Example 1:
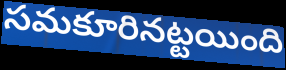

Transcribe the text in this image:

సమకూరినట్టయింది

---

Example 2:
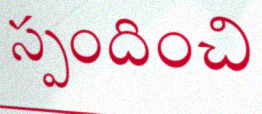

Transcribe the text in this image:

స్పందించి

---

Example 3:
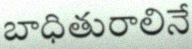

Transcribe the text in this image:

బాధితురాలినే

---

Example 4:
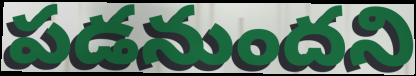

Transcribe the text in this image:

పడనుందని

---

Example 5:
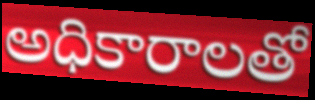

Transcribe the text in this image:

అధికారాలతో